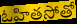
ఓహితసోతో